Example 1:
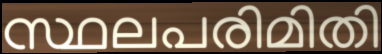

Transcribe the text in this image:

സ്ഥലപരിമിതി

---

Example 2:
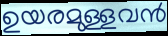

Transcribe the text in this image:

ഉയരമുള്ളവൻ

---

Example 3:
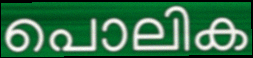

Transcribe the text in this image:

പൊലിക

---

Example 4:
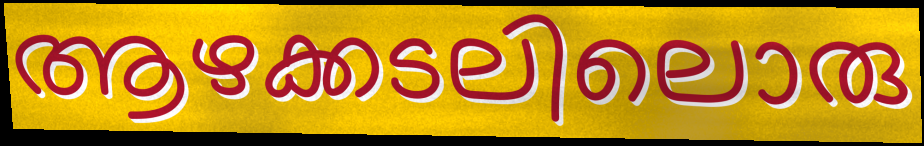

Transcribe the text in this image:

ആഴക്കടലിലൊരു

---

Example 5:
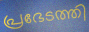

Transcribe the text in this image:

പ്രഭേടത്തി